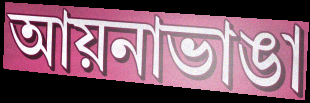
আয়নাভাঙা